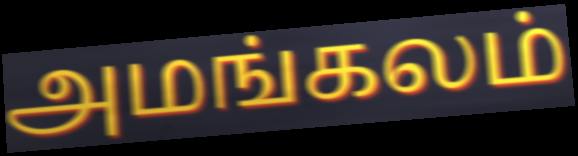
அமங்கலம்